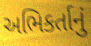
અભિકર્તાનું